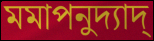
মমাপনুদ্যাদ্